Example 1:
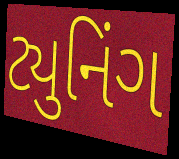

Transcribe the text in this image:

ટ્યુનિંગ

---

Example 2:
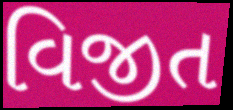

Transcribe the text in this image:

વિજીત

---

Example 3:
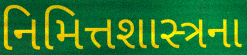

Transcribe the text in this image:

નિમિત્તશાસ્ત્રના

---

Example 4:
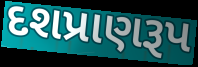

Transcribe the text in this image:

દશપ્રાણરૂપ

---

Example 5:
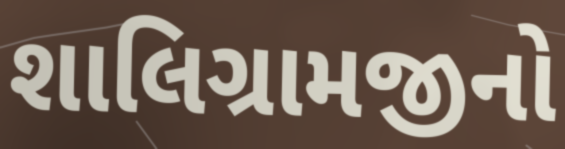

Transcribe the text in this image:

શાલિગ્રામજીનો